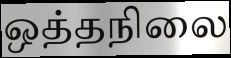
ஒத்தநிலை